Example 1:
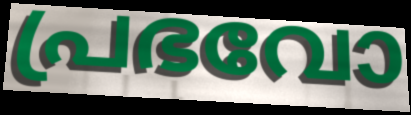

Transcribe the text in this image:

പ്രഭവോ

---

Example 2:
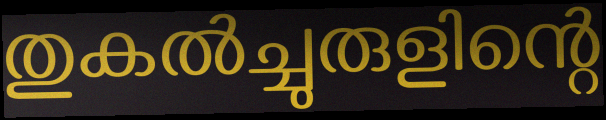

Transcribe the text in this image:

തുകൽച്ചുരുളിന്റെ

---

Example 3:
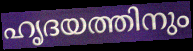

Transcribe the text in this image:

ഹൃദയത്തിനും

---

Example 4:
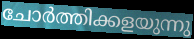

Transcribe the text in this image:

ചോർത്തിക്കളയുന്നു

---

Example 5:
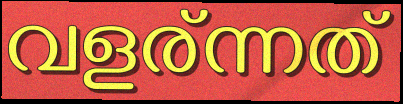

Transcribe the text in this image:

വളര്ന്നത്